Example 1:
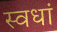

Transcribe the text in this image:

स्वधां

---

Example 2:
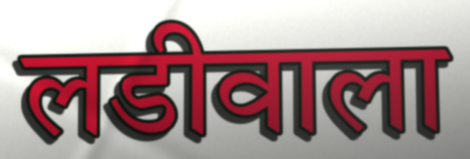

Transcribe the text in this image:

लडीवाला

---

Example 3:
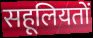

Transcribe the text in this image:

सहूलियतों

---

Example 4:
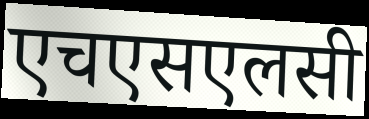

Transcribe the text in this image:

एचएसएलसी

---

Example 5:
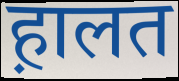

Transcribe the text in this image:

ह़ालत